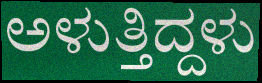
ಅಳುತ್ತಿದ್ದಳು